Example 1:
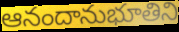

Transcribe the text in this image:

ఆనందానుభూతిని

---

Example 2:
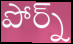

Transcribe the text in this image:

పోర్న్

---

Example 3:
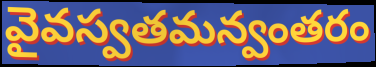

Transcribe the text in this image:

వైవస్వతమన్వంతరం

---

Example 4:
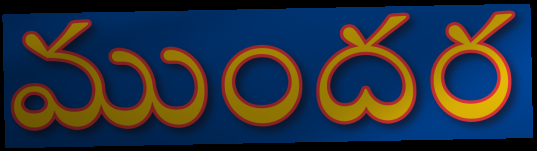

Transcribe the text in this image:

ముందర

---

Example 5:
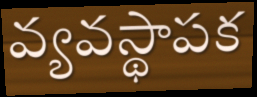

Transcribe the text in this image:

వ్యవస్థాపక